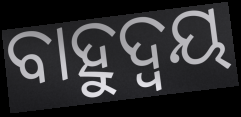
ବାହୁଦ୍ୱୟ